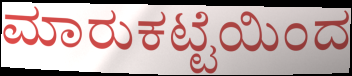
ಮಾರುಕಟ್ಟೆಯಿಂದ